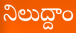
నిలుద్దాం